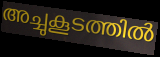
അച്ചുകൂടത്തിൽ